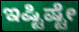
ಇಷ್ಟಿಷ್ಟೇ